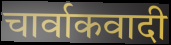
चार्वाकवादी